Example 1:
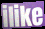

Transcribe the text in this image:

ilike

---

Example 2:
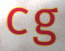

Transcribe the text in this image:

cg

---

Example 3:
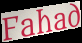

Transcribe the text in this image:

Fahad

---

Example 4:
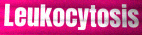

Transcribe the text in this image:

Leukocytosis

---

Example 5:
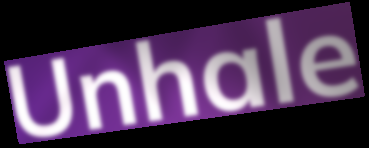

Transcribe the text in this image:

Unhale